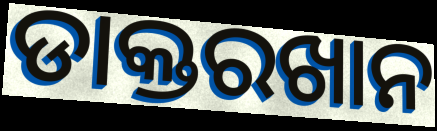
ଡାକ୍ତରଖାନ